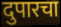
दुपारचा